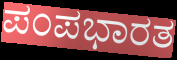
ಪಂಪಭಾರತ